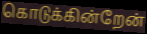
கொடுக்கின்றேன்